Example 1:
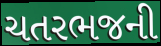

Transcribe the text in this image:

ચતરભજની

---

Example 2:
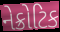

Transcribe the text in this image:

નેક્રોટિક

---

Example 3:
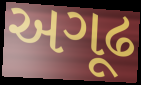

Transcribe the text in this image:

અગૂઢ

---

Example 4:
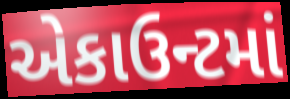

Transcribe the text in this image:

એકાઉન્ટમાં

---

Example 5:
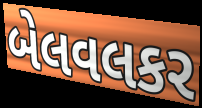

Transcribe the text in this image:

બેલવલકર